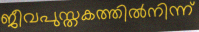
ജീവപുസ്തകത്തിൽനിന്ന്